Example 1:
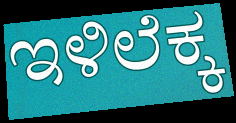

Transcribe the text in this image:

ಇಳಿಲೆಕ್ಕ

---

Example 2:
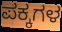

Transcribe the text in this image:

ಪಕ್ಕಗಳ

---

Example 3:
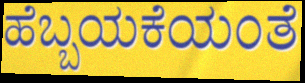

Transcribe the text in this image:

ಹೆಬ್ಬಯಕೆಯಂತೆ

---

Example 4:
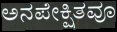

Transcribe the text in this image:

ಅನಪೇಕ್ಷಿತವೂ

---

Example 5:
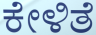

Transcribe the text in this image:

ಕೇಳಿತೆ